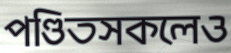
পণ্ডিতসকলেও